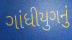
ગાંધીયુગનું